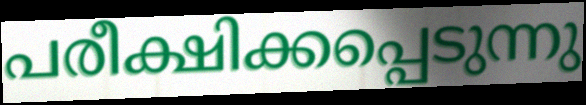
പരീക്ഷിക്കപ്പെടുന്നു